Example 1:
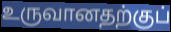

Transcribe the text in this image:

உருவானதற்குப்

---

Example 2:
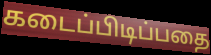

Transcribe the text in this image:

கடைப்பிடிப்பதை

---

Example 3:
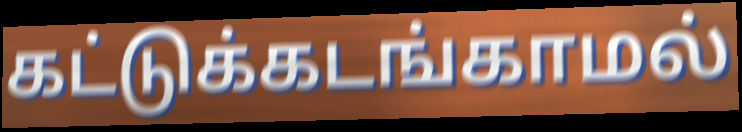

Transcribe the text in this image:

கட்டுக்கடங்காமல்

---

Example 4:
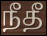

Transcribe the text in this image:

நீதீ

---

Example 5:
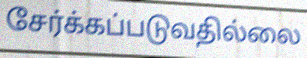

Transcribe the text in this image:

சேர்க்கப்படுவதில்லை